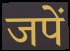
जपें